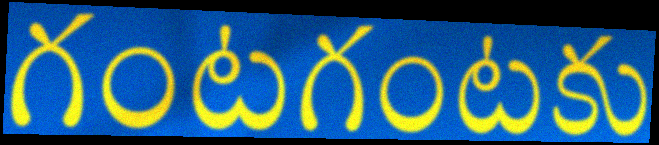
గంటగంటకు